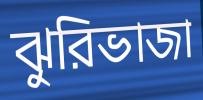
ঝুরিভাজা